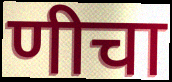
णीचा